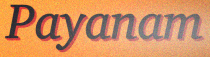
Payanam